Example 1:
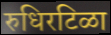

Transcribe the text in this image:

रुधिरटिळा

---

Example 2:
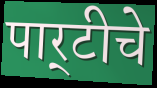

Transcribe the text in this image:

पार्टीचे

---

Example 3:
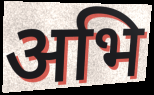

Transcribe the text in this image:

अभि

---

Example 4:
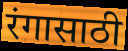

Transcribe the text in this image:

रंगासाठी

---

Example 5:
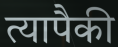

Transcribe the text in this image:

त्यापैकी